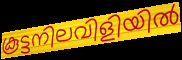
കൂട്ടനിലവിളിയിൽ